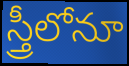
స్త్రీలోనూ